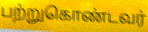
பற்றுகொண்டவர்